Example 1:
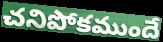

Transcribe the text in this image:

చనిపోకముందే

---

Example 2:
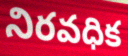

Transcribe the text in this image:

నిరవధిక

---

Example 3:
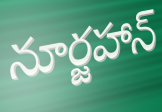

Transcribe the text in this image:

నూర్జహాన్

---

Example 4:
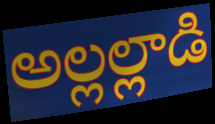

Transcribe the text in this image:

అల్లల్లాడి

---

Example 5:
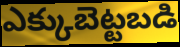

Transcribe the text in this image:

ఎక్కుబెట్టబడి